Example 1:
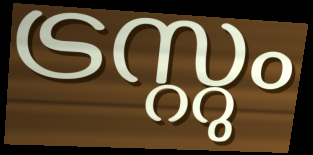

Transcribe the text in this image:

ട്രസ്റ്റും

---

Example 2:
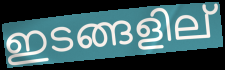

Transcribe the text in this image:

ഇടങ്ങളില്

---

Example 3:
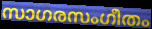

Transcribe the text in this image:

സാഗരസംഗീതം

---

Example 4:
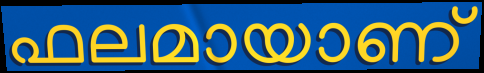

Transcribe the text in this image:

ഫലമായാണ്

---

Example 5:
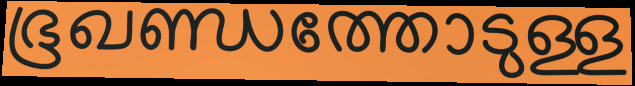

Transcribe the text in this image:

ഭൂഖണ്ഡത്തോടുള്ള